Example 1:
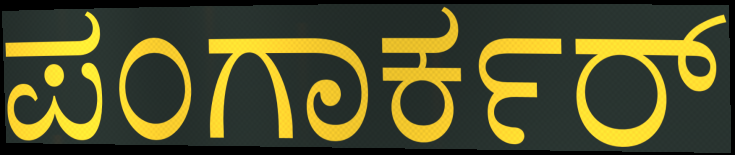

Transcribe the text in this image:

ಪಂಗಾರ್ಕರ್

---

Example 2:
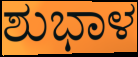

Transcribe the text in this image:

ಶುಭಾಳ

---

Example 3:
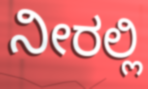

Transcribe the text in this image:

ನೀರಲ್ಲಿ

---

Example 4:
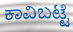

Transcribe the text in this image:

ಕಾವಿಬಟ್ಟೆ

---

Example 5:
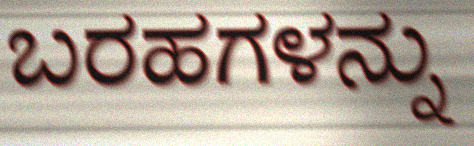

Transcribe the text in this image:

ಬರಹಗಳನ್ನು